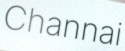
Channai